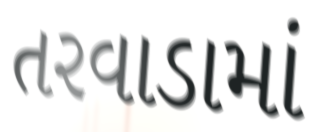
તરવાડામાં